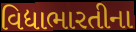
વિદ્યાભારતીના